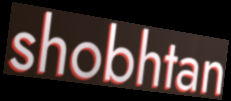
shobhtan